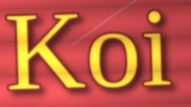
Koi